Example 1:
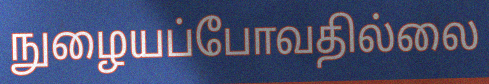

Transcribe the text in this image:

நுழையப்போவதில்லை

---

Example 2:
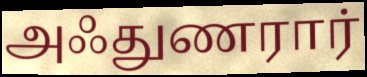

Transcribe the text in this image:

அஃதுணரார்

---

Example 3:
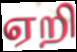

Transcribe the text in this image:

ஏறி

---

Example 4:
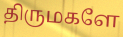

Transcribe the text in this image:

திருமகளே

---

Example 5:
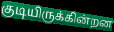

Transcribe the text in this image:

குடியிருக்கின்றன